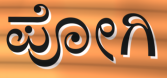
ಪೋಗಿ